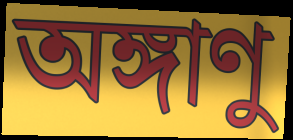
অঙ্গাণু